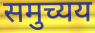
समुच्यय